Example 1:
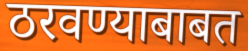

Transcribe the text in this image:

ठरवण्याबाबत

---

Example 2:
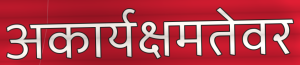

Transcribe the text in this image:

अकार्यक्षमतेवर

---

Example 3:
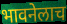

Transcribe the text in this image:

भावनेलाच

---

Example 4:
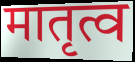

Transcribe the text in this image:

मातृत्व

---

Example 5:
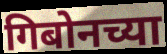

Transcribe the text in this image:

गिबोनच्या